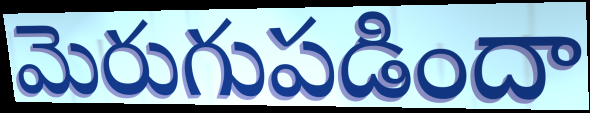
మెరుగుపడిందా